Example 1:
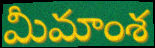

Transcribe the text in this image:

మీమాంశ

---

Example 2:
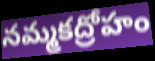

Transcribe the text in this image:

నమ్మకద్రోహం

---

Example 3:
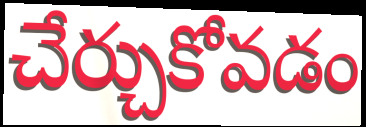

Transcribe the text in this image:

చేర్చుకోవడం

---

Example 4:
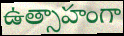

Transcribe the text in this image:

ఉత్సాహంగా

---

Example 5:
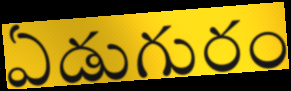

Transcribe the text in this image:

ఏడుగురం